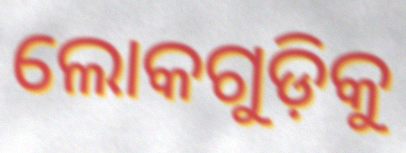
ଲୋକଗୁଡ଼ିକୁ